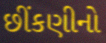
છીંકણીનો